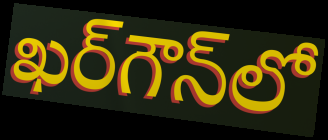
ఖర్‌గౌన్‌లో